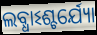
ଲବ୍ଧାଽଶ୍ଚର୍ଯ୍ୟୋ